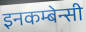
इनकम्बेन्सी